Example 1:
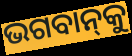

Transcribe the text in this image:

ଭଗବାନ୍‌କୁ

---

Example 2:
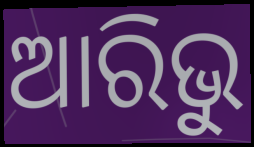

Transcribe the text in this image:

ଆରିଭୁ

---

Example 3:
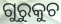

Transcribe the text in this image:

ଗୁରୁକୁଚ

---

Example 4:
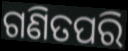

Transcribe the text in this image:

ଗଣିତପରି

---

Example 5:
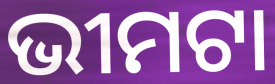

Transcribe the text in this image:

ଭୀମଟା